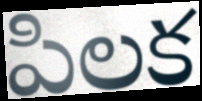
పిలక